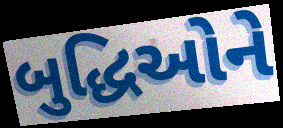
બુદ્ધિઓને